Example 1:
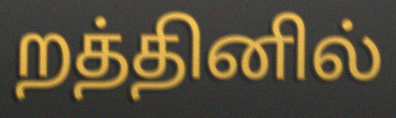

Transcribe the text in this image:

றத்தினில்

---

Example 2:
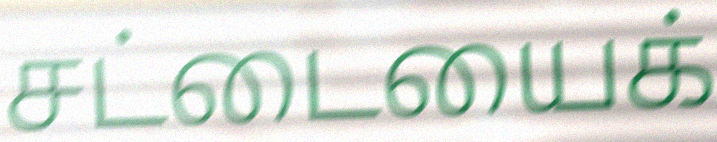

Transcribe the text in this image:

சட்டையைக்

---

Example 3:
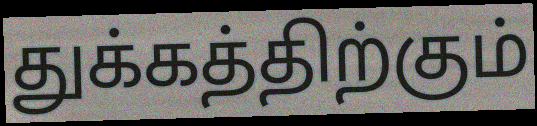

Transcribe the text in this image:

துக்கத்திற்கும்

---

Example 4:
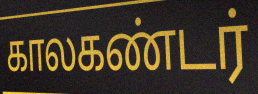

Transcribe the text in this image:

காலகண்டர்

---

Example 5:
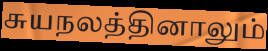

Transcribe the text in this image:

சுயநலத்தினாலும்